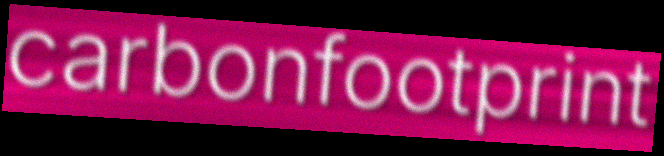
carbonfootprint